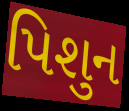
પિશુન